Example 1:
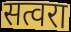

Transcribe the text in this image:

सत्वरा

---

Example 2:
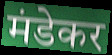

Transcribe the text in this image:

मंडेकर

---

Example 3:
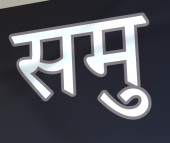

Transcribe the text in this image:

समु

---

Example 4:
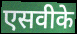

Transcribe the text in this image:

एसवीके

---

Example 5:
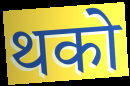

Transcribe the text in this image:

थको